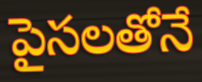
పైసలతోనే